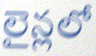
లైన్లలో